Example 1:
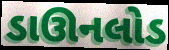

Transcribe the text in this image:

ડાઊનલોડ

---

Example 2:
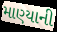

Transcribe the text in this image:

માણ્યાની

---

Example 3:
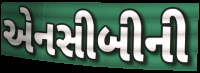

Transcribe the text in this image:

એનસીબીની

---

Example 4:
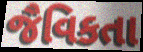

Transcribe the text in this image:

જૈવિકતા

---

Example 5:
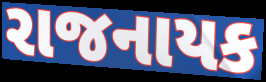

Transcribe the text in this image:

રાજનાયક